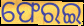
ଫେରଇ